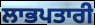
ਲਾਭਪਤਾਰੀ